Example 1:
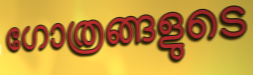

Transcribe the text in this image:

ഗോത്രങ്ങളുടെ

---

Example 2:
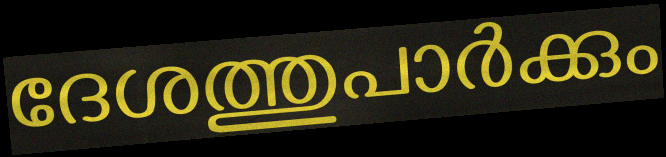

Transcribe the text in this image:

ദേശത്തുപാർക്കും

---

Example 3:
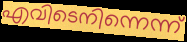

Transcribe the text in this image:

എവിടെനിന്നെന്ന്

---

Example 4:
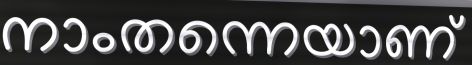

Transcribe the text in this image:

നാംതന്നെയാണ്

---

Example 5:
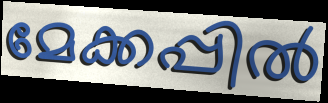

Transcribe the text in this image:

മേക്കപ്പിൽ